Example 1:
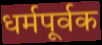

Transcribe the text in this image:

धर्मपूर्वक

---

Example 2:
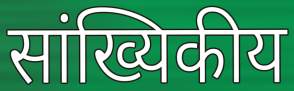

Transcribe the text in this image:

सांख्यिकीय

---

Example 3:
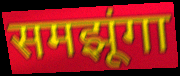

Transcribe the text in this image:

समझूंगा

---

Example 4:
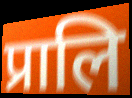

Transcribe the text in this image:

प्रालि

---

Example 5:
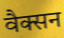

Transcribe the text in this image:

वैक्सन